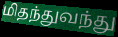
மிதந்துவந்து